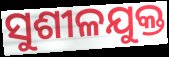
ସୁଶୀଳଯୁକ୍ତ